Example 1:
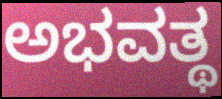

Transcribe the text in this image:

ಅಭವತ್ಥ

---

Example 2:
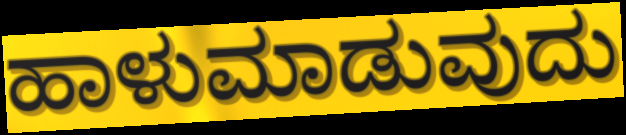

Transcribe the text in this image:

ಹಾಳುಮಾಡುವುದು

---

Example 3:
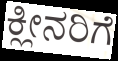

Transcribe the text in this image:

ಕ್ಲೀನರಿಗೆ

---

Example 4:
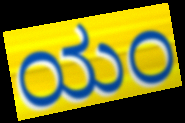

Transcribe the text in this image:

ಯಂ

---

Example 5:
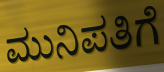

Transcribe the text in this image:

ಮುನಿಪತಿಗೆ